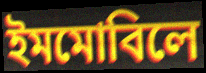
ইমমোবিলে